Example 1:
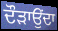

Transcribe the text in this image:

ਦੌੜਾਉਂਦਾ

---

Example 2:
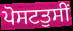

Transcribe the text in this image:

ਪੋਸਟਤੁਸੀਂ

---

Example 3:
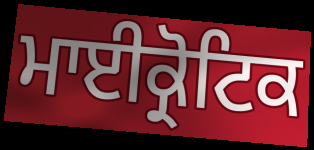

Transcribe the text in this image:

ਮਾਈਕ੍ਰੋਟਿਕ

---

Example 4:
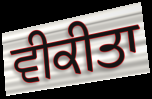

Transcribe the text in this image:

ਵੀਕੀਤਾ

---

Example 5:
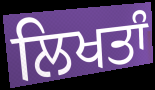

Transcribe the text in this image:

ਲਿਖਤਾੰ